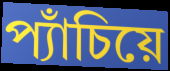
প্যাঁচিয়ে